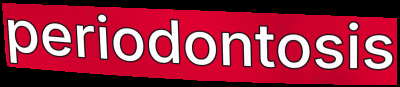
periodontosis